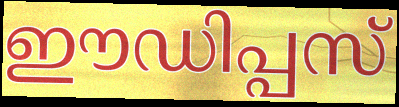
ഈഡിപ്പസ്